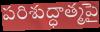
పరిశుద్ధాత్మపై